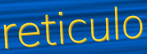
reticulo